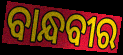
ବାନ୍ଧବୀର